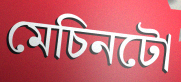
মেচিনটো